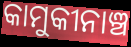
କାମୁକୀନାଞ୍ଚ